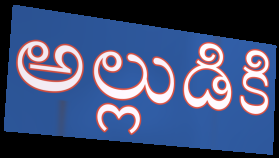
అల్లుడికి